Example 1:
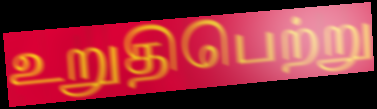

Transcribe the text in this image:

உறுதிபெற்று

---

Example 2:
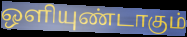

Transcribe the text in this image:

ஒளியுண்டாகும்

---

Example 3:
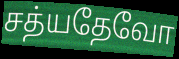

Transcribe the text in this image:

சத்யதேவோ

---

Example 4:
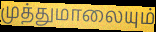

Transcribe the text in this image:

முத்துமாலையும்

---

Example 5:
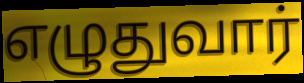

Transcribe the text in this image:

எழுதுவார்